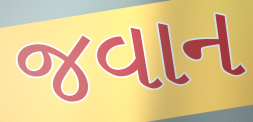
જવાન